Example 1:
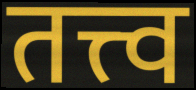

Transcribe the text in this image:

तत्त्व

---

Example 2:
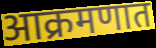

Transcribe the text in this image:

आक्रमणात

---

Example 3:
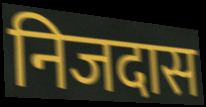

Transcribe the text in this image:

निजदास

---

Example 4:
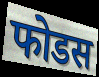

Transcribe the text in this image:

फोडस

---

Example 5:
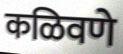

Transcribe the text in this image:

कळिवणे